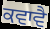
ਕਵਾਵੈ